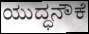
ಯುದ್ಧನೌಕೆ